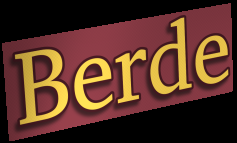
Berde